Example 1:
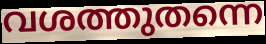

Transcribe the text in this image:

വശത്തുതന്നെ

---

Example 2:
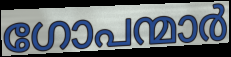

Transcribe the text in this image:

ഗോപന്മാർ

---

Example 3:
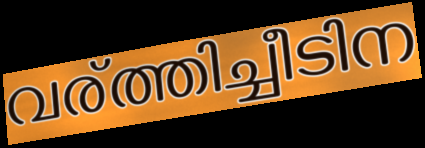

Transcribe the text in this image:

വര്ത്തിച്ചീടിന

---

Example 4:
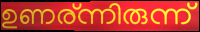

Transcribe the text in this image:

ഉണര്ന്നിരുന്ന്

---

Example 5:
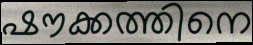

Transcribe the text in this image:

ഷൗക്കത്തിനെ